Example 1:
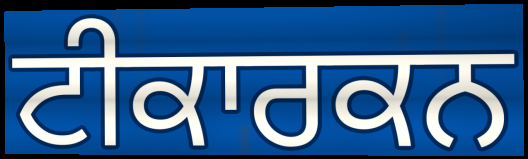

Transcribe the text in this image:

ਟੀਕਾਰਕਨ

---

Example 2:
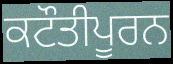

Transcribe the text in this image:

ਕਟੌਤੀਪੂਰਨ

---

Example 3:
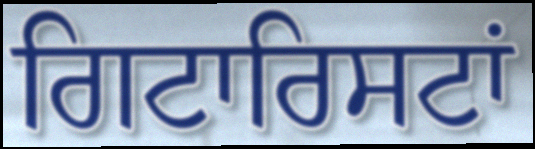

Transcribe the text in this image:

ਗਿਟਾਰਿਸਟਾਂ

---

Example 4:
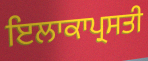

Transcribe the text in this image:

ਇਲਾਕਾਪ੍ਰਸਤੀ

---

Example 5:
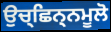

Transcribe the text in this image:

ਉਚ੍ਛਿਨ੍ਨਮੂਲੋ